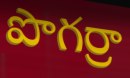
పొగర్రా